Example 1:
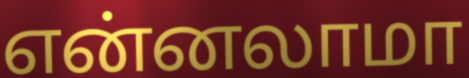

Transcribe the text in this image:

என்னலாமா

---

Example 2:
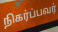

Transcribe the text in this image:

நிகர்ப்பவர்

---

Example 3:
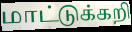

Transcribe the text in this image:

மாட்டுக்கறி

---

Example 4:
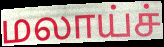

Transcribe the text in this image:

மலாய்ச்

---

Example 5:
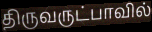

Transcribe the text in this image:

திருவருட்பாவில்